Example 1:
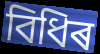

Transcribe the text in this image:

বিধিৰ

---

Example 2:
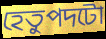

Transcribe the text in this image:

হেতুপদটো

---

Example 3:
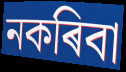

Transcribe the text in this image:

নকৰিবা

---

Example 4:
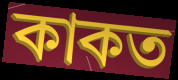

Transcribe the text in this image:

কাকত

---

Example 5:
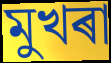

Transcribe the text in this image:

মুখৰা